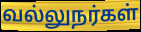
வல்லுநர்கள்